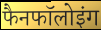
फैनफॉलोइंग